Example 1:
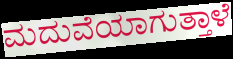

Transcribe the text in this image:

ಮದುವೆಯಾಗುತ್ತಾಳೆ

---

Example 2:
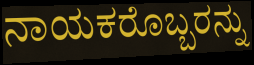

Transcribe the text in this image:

ನಾಯಕರೊಬ್ಬರನ್ನು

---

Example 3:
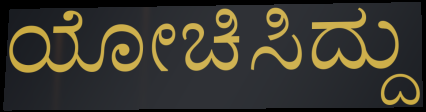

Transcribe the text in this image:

ಯೋಚಿಸಿದ್ದು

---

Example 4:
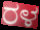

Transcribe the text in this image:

ರಳ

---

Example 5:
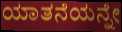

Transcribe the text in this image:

ಯಾತನೆಯನ್ನೇ